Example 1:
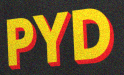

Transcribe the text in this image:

PYD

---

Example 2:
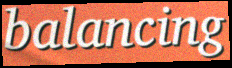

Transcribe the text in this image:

balancing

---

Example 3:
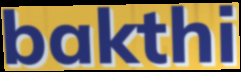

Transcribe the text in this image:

bakthi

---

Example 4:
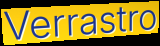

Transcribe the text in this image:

Verrastro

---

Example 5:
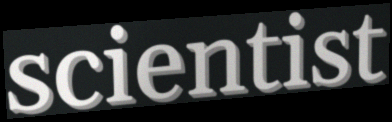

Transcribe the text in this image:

scientist